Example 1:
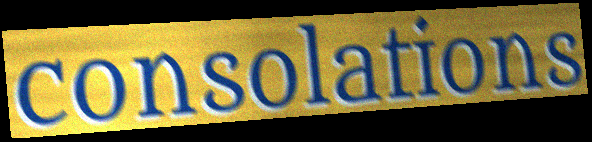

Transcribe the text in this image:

consolations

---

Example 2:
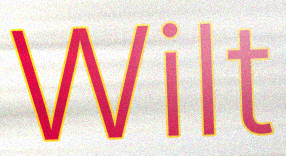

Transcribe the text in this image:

Wilt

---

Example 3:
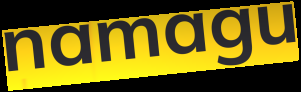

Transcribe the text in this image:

namagu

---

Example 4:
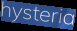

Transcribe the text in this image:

hysteria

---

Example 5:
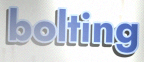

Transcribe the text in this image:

bolting